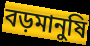
বড়মানুষি